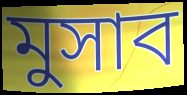
মুসাব